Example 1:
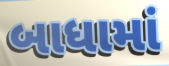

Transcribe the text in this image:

બાધામાં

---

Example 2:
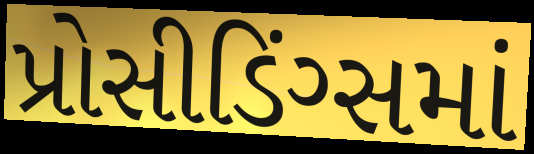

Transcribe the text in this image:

પ્રોસીડિંગ્સમાં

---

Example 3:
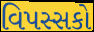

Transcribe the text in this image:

વિપસ્સકો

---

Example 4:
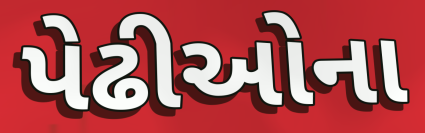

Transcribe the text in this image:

પેઢીઓના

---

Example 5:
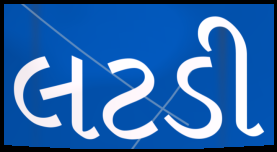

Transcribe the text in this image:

લટડી